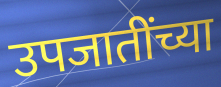
उपजातींच्या